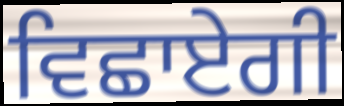
ਵਿਛਾਏਗੀ